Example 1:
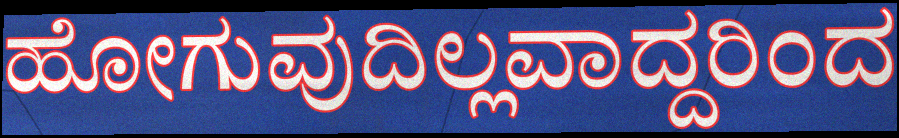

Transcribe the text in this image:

ಹೋಗುವುದಿಲ್ಲವಾದ್ದರಿಂದ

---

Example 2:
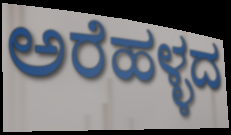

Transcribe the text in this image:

ಅರೆಹಳ್ಳದ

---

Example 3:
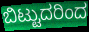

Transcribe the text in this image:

ಬಿಟ್ಟುದರಿಂದ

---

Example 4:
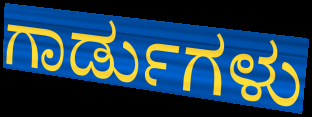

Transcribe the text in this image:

ಗಾರ್ಡುಗಳು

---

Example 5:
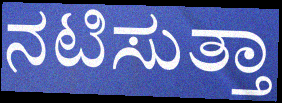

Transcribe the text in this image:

ನಟಿಸುತ್ತಾ